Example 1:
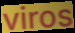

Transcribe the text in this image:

viros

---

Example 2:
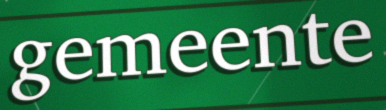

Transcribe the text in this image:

gemeente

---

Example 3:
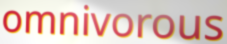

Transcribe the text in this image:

omnivorous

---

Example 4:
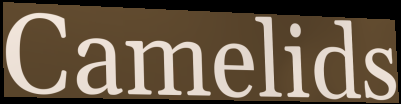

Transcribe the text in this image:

Camelids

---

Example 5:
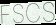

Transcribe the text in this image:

FSCS